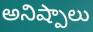
అనిష్పాలు